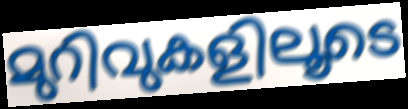
മുറിവുകളിലൂടെ